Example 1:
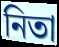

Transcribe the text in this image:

নিতা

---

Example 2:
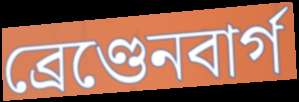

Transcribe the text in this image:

ব্ৰেণ্ডেনবাৰ্গ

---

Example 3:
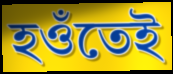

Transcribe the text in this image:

হওঁতেই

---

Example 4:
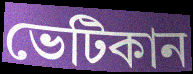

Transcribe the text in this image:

ভেটিকান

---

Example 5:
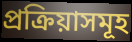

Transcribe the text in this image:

প্ৰক্ৰিয়াসমূহ